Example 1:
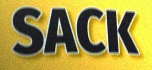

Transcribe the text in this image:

SACK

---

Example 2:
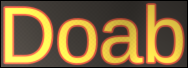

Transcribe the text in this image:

Doab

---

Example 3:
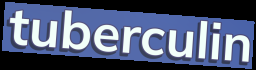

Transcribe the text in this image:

tuberculin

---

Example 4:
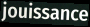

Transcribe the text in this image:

jouissance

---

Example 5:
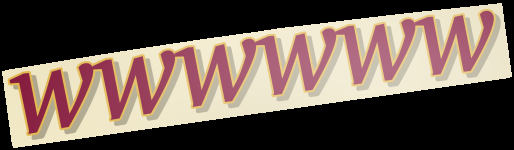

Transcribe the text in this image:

wwwwww